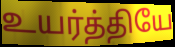
உயர்த்தியே